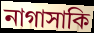
নাগাসাকি